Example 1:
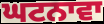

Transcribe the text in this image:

ਘਟਨਾਵਾ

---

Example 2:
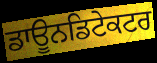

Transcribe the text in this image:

ਡਾਊਨਡਿਟੇਕਟਰ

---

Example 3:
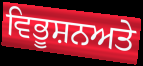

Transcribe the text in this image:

ਵਿਭੂਸ਼ਨਅਤੇ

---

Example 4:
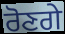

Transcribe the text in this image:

ਰੋਣਗੇ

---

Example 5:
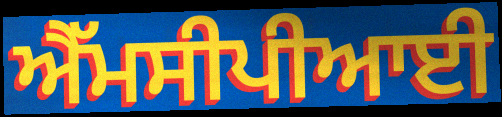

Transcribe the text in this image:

ਐੱਮਸੀਪੀਆਈ